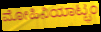
ಮೋಹಿನಿಯಾಟ್ಟಂ